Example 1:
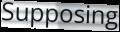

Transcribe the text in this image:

Supposing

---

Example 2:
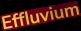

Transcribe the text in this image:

Effluvium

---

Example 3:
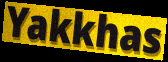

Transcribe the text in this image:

Yakkhas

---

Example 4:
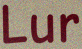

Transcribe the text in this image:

Lur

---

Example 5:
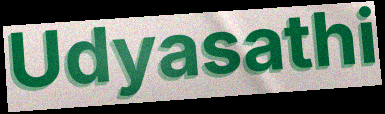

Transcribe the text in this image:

Udyasathi